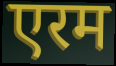
एरम